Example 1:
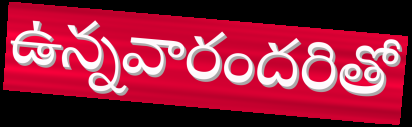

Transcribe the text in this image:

ఉన్నవారందరితో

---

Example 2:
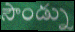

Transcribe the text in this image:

సౌండ్ను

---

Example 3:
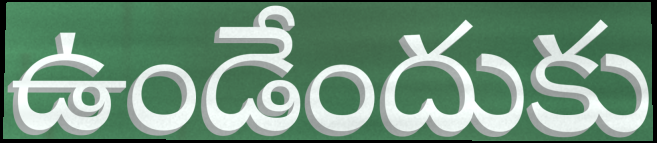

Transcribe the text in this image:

ఉండేందుకు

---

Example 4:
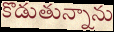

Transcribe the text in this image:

కొడుతున్నాను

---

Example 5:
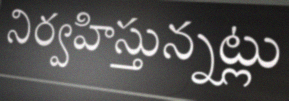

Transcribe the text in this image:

నిర్వహిస్తున్నట్లు